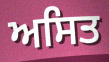
ਅਸਿਤ